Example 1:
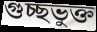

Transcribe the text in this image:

গুচ্ছভুক্ত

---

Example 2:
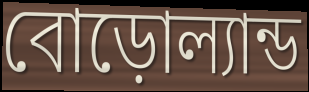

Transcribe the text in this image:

বোড়োল্যান্ড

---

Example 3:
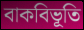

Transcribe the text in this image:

বাকবিভূতি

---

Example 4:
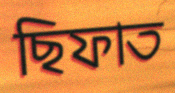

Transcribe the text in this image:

ছিফাত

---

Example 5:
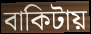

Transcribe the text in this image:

বাকিটায়